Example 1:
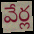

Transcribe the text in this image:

వేర్ల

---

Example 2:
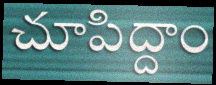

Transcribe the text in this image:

చూపిద్దాం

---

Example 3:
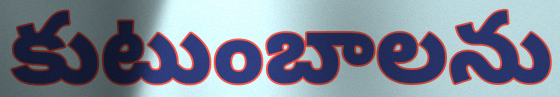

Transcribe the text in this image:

కుటుంబాలను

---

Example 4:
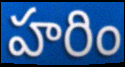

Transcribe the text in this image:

హరిం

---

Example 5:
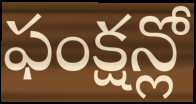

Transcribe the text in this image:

ఫంక్షన్లో